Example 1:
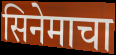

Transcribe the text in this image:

सिनेमाचा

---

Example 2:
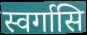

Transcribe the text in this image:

स्वर्गासि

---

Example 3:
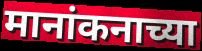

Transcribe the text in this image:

मानांकनाच्या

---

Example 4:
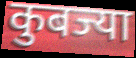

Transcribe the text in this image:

कुबज्या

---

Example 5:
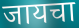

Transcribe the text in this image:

जायचा